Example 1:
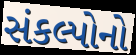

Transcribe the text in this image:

સંકલ્પોનો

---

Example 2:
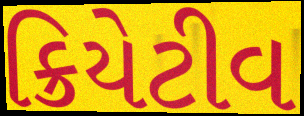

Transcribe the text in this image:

ક્રિયેટીવ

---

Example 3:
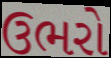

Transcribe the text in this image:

ઉભરો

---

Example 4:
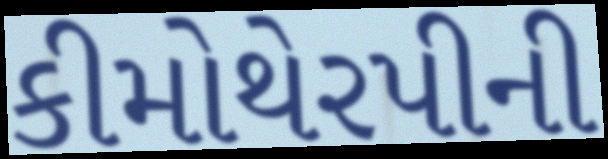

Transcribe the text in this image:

કીમોથેરપીની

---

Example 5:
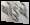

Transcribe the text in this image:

થોડુંયે